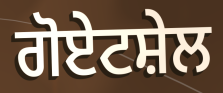
ਗੋਏਟਸ਼ੇਲ